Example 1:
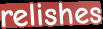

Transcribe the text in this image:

relishes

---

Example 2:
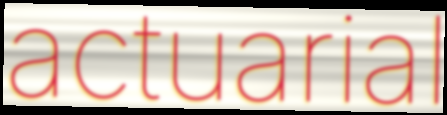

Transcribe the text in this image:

actuarial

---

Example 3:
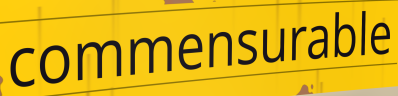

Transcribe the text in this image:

commensurable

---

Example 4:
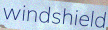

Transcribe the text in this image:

windshield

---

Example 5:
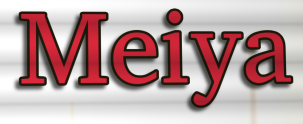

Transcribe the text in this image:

Meiya